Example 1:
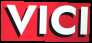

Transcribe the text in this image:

VICI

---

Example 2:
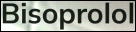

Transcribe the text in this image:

Bisoprolol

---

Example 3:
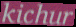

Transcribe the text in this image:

kichur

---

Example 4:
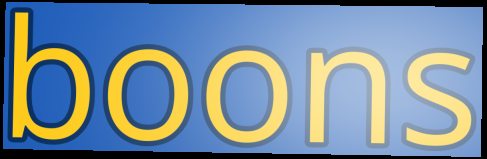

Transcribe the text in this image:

boons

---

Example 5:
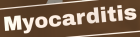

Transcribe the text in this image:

Myocarditis